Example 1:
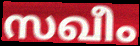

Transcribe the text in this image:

സഖീം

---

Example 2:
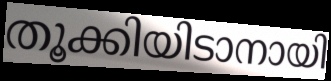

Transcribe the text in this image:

തൂക്കിയിടാനായി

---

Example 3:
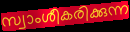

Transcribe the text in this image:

സ്വാംശീകരിക്കുന്ന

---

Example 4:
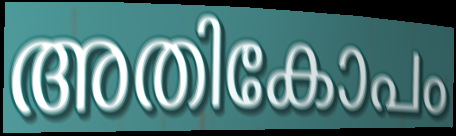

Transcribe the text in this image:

അതികോപം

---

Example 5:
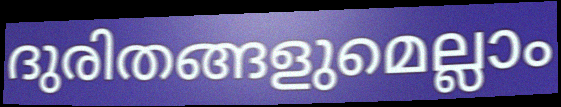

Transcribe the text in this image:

ദുരിതങ്ങളുമെല്ലാം